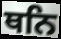
ਥਨਿ